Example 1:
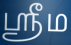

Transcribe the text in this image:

ஶ்ரீம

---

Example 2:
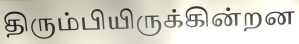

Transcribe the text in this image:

திரும்பியிருக்கின்றன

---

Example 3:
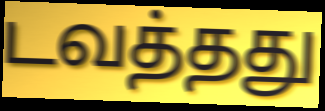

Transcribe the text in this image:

டவத்தது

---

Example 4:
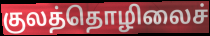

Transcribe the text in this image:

குலத்தொழிலைச்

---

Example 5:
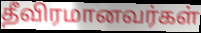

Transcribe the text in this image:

தீவிரமானவர்கள்